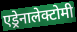
एड्रेनालेक्टोमी